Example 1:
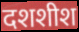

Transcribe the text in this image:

दशशीश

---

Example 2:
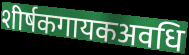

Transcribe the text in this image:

शीर्षकगायकअवधि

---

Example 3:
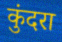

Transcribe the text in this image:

कुंदरा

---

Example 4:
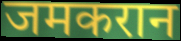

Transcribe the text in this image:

जमकरान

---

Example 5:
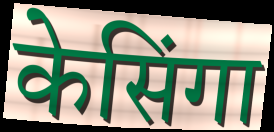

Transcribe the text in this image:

केसिंगा